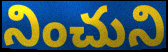
నించుని